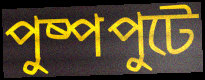
পুষ্পপুটে